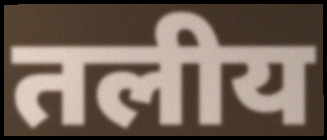
तलीय